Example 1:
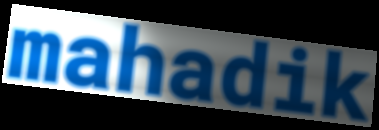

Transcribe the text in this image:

mahadik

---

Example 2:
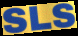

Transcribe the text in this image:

SLS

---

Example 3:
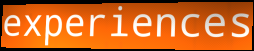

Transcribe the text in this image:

experiences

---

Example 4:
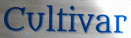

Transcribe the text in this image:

Cultivar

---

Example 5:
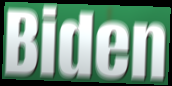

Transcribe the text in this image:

Biden